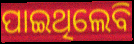
ପାଇଥିଲେବି